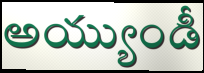
అయ్యుండీ